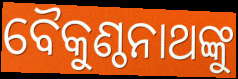
ବୈକୁଣ୍ଠନାଥଙ୍କୁ